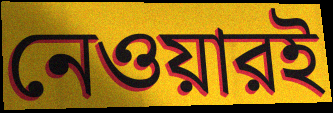
নেওয়ারই